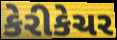
કેરીકેચર